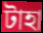
টাহা